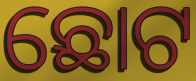
ଛୋଟ